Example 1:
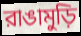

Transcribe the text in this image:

রাঙামুড়ি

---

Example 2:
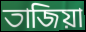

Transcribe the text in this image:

তাজিয়া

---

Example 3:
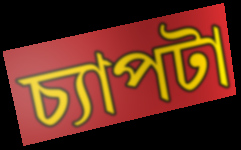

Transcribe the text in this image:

চ্যাপটা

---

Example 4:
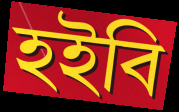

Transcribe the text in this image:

হইবি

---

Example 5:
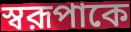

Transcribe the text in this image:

স্বরূপাকে